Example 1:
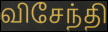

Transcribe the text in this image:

விசேந்தி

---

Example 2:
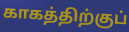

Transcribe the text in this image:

காகத்திற்குப்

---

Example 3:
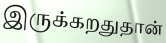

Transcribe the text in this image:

இருக்கறதுதான்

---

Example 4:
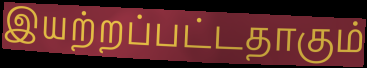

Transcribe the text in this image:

இயற்றப்பட்டதாகும்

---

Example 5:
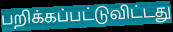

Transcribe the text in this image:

பறிக்கப்பட்டுவிட்டது